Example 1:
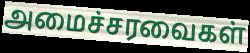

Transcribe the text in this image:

அமைச்சரவைகள்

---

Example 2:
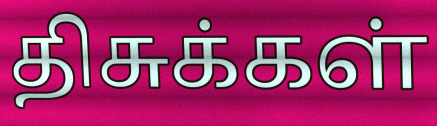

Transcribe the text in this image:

திசுக்கள்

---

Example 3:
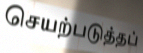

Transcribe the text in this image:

செயற்படுத்தப்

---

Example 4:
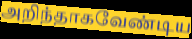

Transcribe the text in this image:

அறிந்தாகவேண்டிய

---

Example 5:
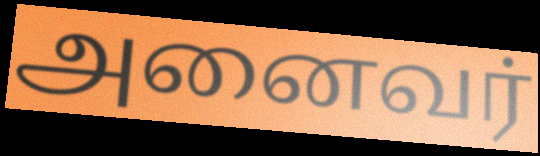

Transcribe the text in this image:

அனைவர்